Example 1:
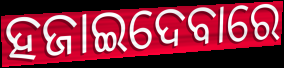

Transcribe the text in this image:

ହଜାଇଦେବାରେ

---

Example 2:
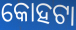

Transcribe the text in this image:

କୋହଟା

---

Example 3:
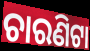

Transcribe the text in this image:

ଚାରଣିଟା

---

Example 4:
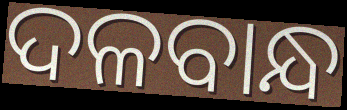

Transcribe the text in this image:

ଦଳବାନ୍ଧ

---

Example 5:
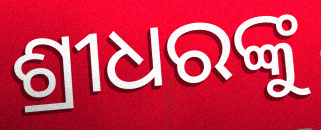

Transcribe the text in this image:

ଶ୍ରୀଧରଙ୍କୁ